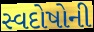
સ્વદોષોની